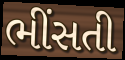
ભીંસતી